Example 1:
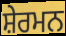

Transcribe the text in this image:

ਸ਼ੇਰਮਨ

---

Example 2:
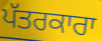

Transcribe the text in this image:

ਪੱਤਰਕਾਰਾ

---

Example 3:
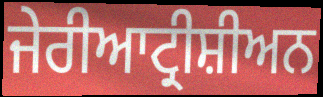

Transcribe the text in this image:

ਜੇਰੀਆਟ੍ਰੀਸ਼ੀਅਨ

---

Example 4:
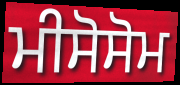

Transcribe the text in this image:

ਮੀਸੋਸੋਮ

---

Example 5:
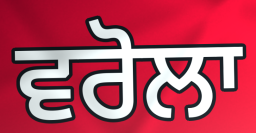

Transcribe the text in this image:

ਵਰੋਲਾ